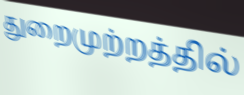
துறைமுற்றத்தில்